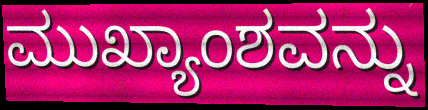
ಮುಖ್ಯಾಂಶವನ್ನು